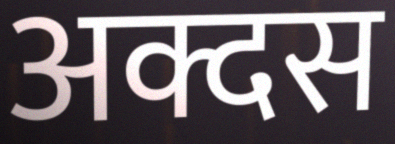
अक्दस